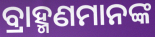
ବ୍ରାହ୍ମଣମାନଙ୍କ